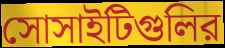
সোসাইটিগুলির